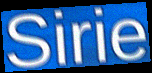
Sirie